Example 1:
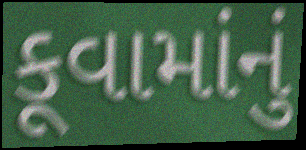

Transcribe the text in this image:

કૂવામાંનું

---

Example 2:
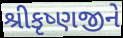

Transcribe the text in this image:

શ્રીકૃષ્ણજીને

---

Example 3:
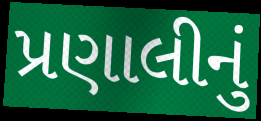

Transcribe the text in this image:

પ્રણાલીનું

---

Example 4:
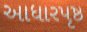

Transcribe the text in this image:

આધારપૃષ્ઠ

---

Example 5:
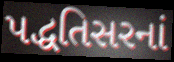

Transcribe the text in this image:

પદ્ધતિસરનાં